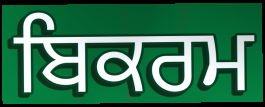
ਬਿਕਰਮ